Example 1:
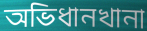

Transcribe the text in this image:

অভিধানখানা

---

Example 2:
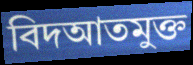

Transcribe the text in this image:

বিদআতমুক্ত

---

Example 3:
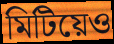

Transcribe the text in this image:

মিটিয়েও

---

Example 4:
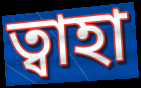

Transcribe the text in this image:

ত্বাহা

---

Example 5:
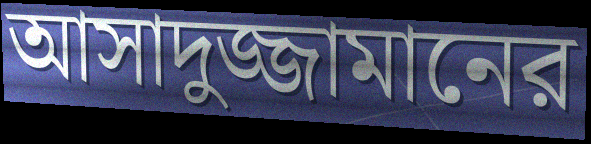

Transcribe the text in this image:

আসাদুজ্জামানের